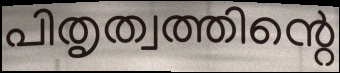
പിതൃത്വത്തിന്റെ